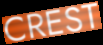
CREST